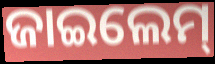
ଜାଇଲେମ୍